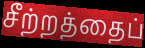
சீற்றத்தைப்